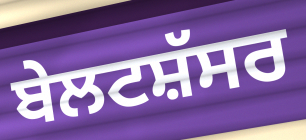
ਬੇਲਟਸ਼ੱਸਰ